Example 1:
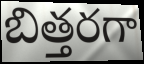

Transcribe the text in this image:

బిత్తరగా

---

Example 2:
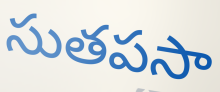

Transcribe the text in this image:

సుతపసా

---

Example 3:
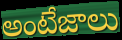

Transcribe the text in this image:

అంటేజాలు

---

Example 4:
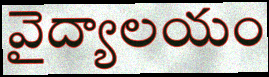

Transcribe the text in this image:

వైద్యాలయం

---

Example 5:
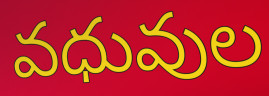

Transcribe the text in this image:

వధువుల